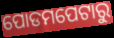
ପୋଡମପେଟାରୁ